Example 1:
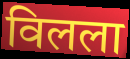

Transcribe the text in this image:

विलला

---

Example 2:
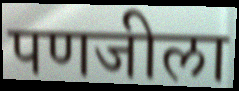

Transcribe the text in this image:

पणजीला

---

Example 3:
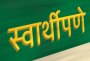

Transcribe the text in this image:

स्वार्थीपणे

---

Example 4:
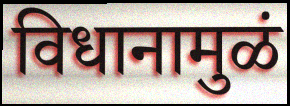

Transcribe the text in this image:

विधानामुळं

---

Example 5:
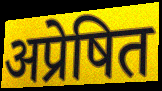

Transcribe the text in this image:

अप्रेषित